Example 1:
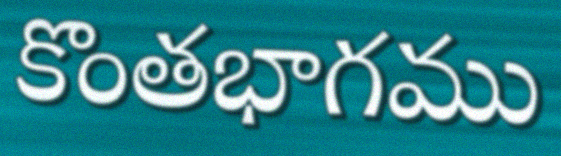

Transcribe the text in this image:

కొంతభాగము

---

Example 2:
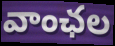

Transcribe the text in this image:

వాంఛల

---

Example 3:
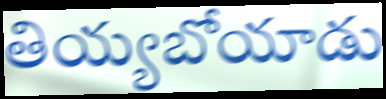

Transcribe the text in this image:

తియ్యబోయాడు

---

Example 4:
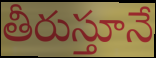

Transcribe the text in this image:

తీరుస్తూనే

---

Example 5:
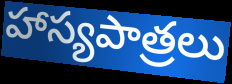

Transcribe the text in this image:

హాస్యపాత్రలు